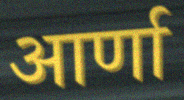
आर्णा